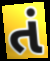
તં